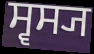
ਸ੍ਵਸ੍ਯ